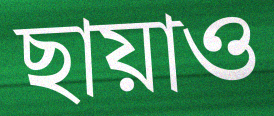
ছায়াও